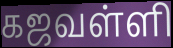
கஜவள்ளி